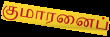
குமாரனைப்